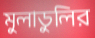
মুলাডুলির